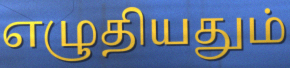
எழுதியதும்